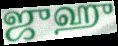
ஜுஹு